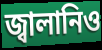
জ্বালানিও